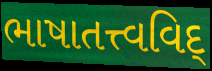
ભાષાતત્ત્વવિદ્